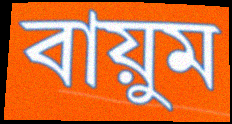
বায়ুম